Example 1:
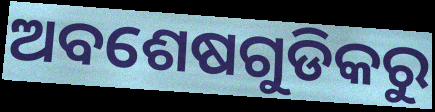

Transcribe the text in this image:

ଅବଶେଷଗୁଡିକରୁ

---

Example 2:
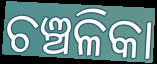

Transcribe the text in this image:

ଚଞ୍ଚଳିକା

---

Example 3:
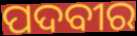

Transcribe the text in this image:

ପଦବୀର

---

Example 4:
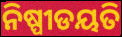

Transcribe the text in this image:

ନିଷ୍ପୀଡୟତି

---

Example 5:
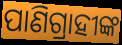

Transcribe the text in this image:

ପାଣିଗ୍ରାହୀଙ୍କ